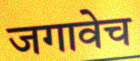
जगावेच